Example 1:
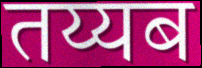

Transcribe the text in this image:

तय्यब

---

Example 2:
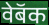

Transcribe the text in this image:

वेबॅक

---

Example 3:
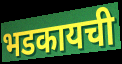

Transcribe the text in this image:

भडकायची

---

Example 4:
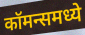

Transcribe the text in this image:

कॉमन्समध्ये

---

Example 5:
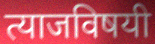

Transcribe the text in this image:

त्याजविषयी